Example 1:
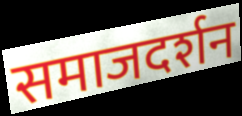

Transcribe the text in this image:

समाजदर्शन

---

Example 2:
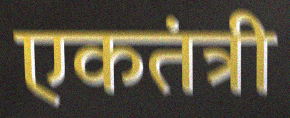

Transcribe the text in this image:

एकतंत्री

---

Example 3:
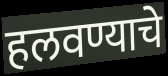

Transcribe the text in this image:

हलवण्याचे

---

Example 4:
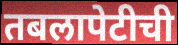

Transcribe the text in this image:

तबलापेटीची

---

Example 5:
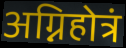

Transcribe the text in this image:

अग्निहोत्रं